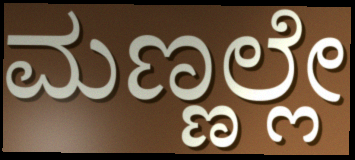
ಮಣ್ಣಲ್ಲೇ